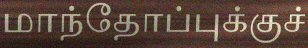
மாந்தோப்புக்குச்